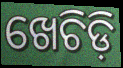
ଖେଚିଡ଼ି